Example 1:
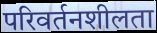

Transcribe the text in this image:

परिवर्तनशीलता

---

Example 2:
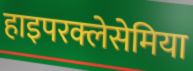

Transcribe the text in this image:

हाइपरक्लेसेमिया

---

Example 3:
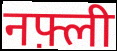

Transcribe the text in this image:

नफ़्ली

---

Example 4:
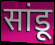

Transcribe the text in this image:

सांडू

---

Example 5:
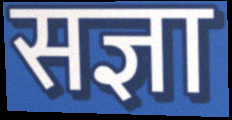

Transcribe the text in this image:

सज्ञा